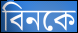
বিনকে